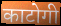
काटोगी